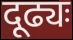
दूढ्यः